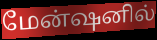
மேன்ஷனில்